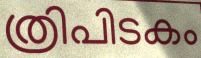
ത്രിപിടകം